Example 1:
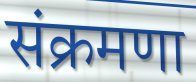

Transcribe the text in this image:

संक्रमणा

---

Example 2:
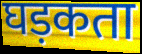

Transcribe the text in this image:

घड़कता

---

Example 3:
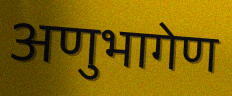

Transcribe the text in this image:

अणुभागेण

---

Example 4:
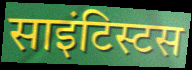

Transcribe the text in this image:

साइंटिस्टस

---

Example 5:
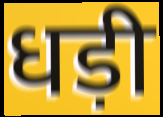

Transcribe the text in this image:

धड़ी